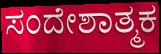
ಸಂದೇಶಾತ್ಮಕ